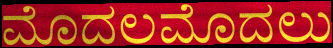
ಮೊದಲಮೊದಲು